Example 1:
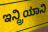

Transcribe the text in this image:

ಇನ್ದ್ರಿಯಾನಿ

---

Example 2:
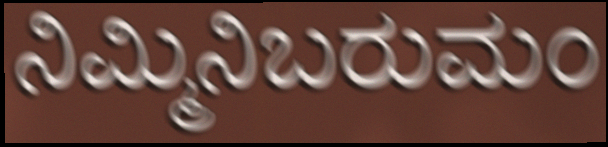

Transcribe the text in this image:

ನಿಮ್ಮಿನಿಬರುಮಂ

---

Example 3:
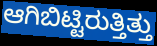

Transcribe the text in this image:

ಆಗಿಬಿಟ್ಟಿರುತ್ತಿತ್ತು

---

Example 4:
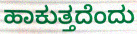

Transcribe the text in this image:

ಹಾಕುತ್ತದೆಂದು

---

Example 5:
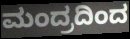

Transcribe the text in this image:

ಮಂದ್ರದಿಂದ